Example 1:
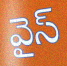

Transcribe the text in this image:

వైస్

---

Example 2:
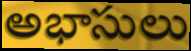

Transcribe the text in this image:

అభాసులు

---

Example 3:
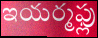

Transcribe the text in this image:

ఇయర్మఫ్లు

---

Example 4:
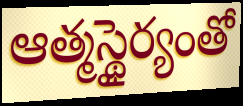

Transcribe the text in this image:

ఆత్మస్థైర్యంతో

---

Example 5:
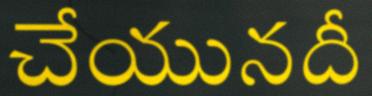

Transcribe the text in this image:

చేయునదీ